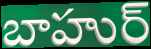
బాహుర్